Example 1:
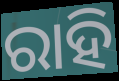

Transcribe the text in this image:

ରାହି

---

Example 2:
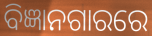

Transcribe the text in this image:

ବିଜ୍ଞାନଗାରରେ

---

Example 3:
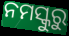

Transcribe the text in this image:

ନମସ୍କୁରୁ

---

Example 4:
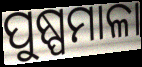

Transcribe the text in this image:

ପୁଷ୍ପମାଳା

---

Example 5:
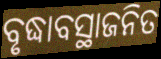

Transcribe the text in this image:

ବୃଦ୍ଧାବସ୍ଥାଜନିତ